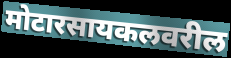
मोटारसायकलवरील